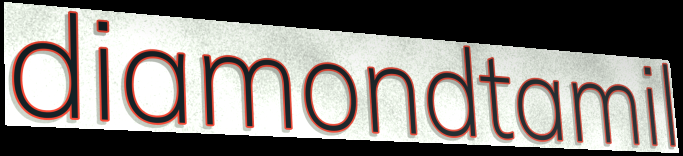
diamondtamil